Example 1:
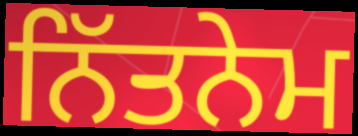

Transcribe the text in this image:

ਨਿੱਤਨੇਮ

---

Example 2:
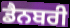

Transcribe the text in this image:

ਡੈਨਬਰੀ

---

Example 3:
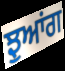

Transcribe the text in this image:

ਝੁਆਂਗ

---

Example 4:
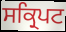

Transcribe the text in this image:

ਸਕ੍ਰਿਪਟ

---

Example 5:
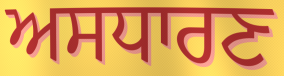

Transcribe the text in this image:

ਅਸਧਾਰਣ